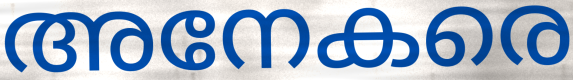
അനേകരെ